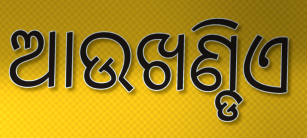
ଆଉଖଣ୍ଡିଏ